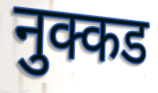
नुक्कड